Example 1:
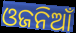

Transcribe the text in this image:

ଓଜନିଆଁ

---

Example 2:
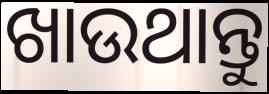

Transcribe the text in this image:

ଖାଉଥାନ୍ତୁ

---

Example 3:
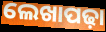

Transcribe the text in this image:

ଲେଖାପଢ଼ା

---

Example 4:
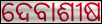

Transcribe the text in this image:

ଦେବାଶୀଷ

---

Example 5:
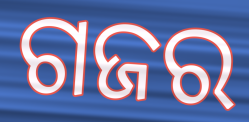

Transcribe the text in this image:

ଗଜର